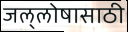
जल्लोषासाठी